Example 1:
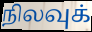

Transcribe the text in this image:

நிலவுக்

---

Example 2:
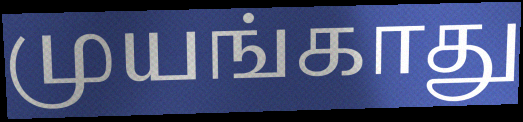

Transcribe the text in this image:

முயங்காது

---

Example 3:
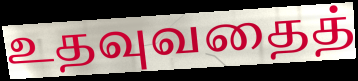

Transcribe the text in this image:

உதவுவதைத்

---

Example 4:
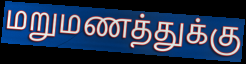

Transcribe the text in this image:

மறுமணத்துக்கு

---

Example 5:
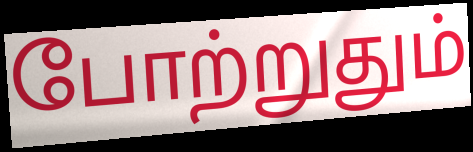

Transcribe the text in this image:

போற்றுதும்